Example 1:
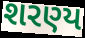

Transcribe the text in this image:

શરણ્ય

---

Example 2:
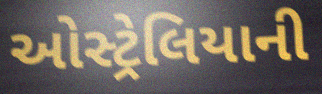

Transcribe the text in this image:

ઓસ્ટ્રેલિયાની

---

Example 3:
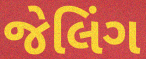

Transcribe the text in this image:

જેલિંગ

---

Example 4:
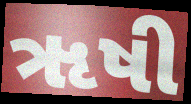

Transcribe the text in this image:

ૠષી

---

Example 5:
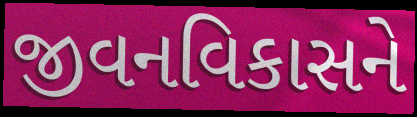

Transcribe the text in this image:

જીવનવિકાસને